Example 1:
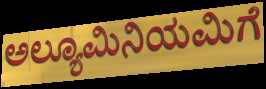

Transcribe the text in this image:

ಅಲ್ಯೂಮಿನಿಯಮಿಗೆ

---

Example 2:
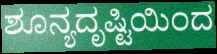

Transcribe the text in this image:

ಶೂನ್ಯದೃಷ್ಟಿಯಿಂದ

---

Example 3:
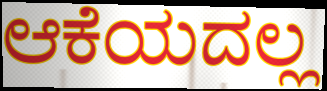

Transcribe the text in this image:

ಆಕೆಯದಲ್ಲ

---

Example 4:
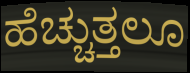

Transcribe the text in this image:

ಹೆಚ್ಚುತ್ತಲೂ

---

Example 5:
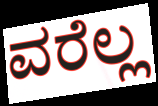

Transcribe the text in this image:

ವರೆಲ್ಲ